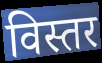
विस्तर